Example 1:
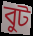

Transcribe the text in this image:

বুট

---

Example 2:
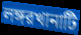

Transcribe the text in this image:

লঙ্গরখানাটি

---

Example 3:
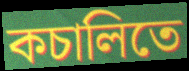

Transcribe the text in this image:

কচালিতে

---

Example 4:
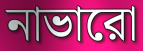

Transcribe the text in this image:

নাভারো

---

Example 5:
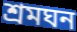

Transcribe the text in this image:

শ্রমঘন